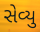
સેવ્યુ